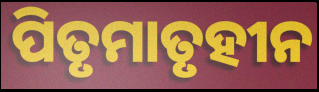
ପିତୃମାତୃହୀନ